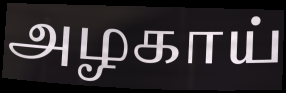
அழகாய்